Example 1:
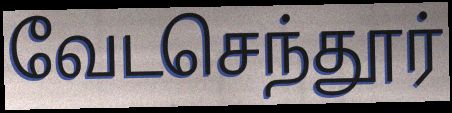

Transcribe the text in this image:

வேடசெந்தூர்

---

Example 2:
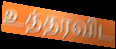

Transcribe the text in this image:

உத்தரவிட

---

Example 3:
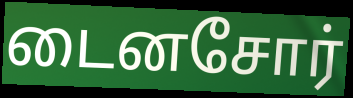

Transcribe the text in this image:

டைனசோர்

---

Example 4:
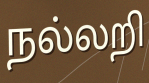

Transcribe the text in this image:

நல்லறி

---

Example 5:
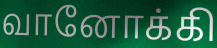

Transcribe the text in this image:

வானோக்கி